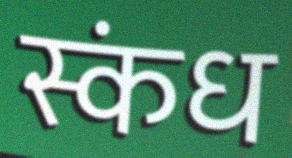
स्कंध